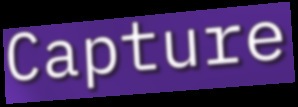
Capture